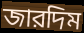
জারদিম